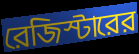
রেজিস্টারের